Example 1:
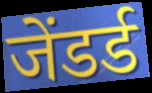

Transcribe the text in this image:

जेंडर्ड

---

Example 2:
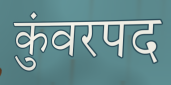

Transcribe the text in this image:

कुंवरपद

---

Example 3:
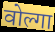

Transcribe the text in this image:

वोल्गा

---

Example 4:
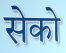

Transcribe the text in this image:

सेको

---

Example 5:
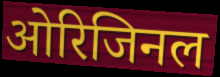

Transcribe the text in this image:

ओरिजिनल